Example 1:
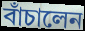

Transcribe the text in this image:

বাঁচালেন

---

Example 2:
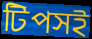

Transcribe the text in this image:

টিপসই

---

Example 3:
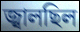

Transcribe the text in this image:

জ্বালছিল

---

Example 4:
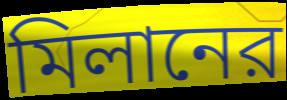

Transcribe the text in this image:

মিলানের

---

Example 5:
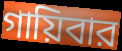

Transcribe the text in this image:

গায়িবার